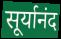
सूर्यानंद